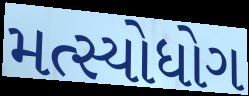
મત્સ્યોધોગ